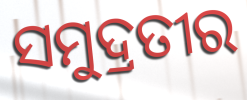
ସମୁଦ୍ରତୀର